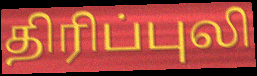
திரிப்புலி